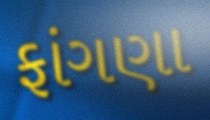
ફાંગણા